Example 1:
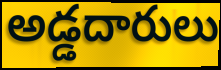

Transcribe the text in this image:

అడ్డదారులు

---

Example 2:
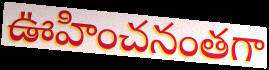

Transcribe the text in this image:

ఊహించనంతగా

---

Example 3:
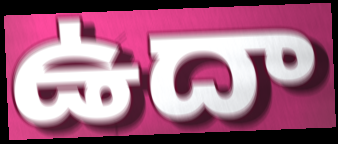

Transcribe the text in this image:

ఉదా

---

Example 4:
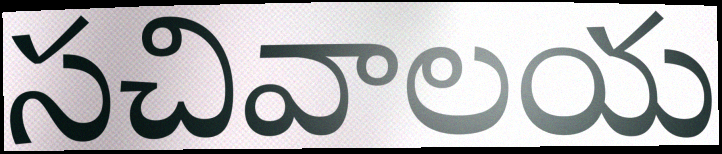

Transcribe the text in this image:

సచివాలయ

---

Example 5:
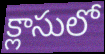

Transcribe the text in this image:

క్లాసులో